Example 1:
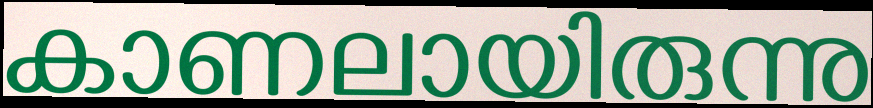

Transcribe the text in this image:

കാണലായിരുന്നു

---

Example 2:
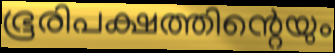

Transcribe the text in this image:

ഭൂരിപക്ഷത്തിന്റെയും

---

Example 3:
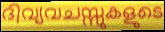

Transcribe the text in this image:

ദിവ്യവചസ്സുകളുടെ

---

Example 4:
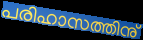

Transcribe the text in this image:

പരിഹാസത്തിനു്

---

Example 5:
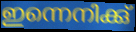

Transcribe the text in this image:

ഇന്നെനിക്കു്